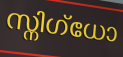
സ്നിഗ്ധോ